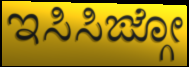
ಇಸಿಸಿಙ್ಗೋ